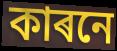
কাৰনে